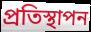
প্ৰতিস্থাপন